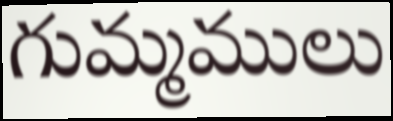
గుమ్మములు